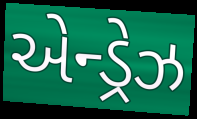
એન્ડ્રેઝ